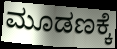
ಮೂಡಣಕ್ಕೆ